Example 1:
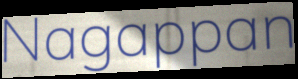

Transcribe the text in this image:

Nagappan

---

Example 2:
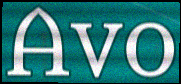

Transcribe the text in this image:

Avo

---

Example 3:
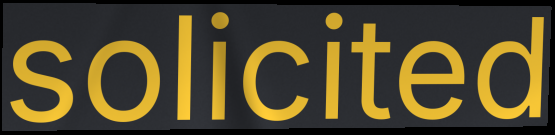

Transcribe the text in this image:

solicited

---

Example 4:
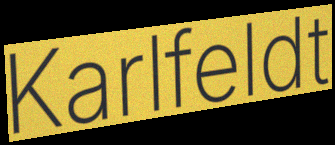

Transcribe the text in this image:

Karlfeldt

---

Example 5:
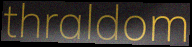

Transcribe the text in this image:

thraldom